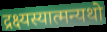
द्रक्ष्यस्यात्मन्यथो